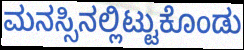
ಮನಸ್ಸಿನಲ್ಲಿಟ್ಟುಕೊಂಡು